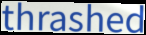
thrashed